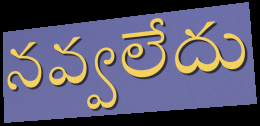
నవ్వలేదు